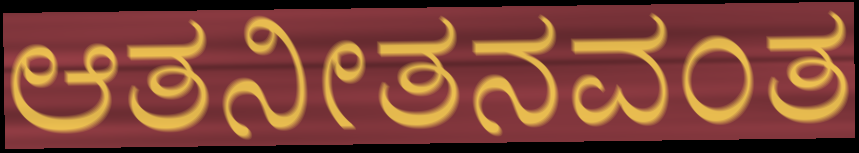
ಆತನೀತನವಂತ